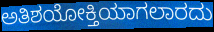
ಅತಿಶಯೋಕ್ತಿಯಾಗಲಾರದು